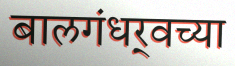
बालगंधर्वच्या